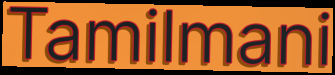
Tamilmani